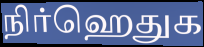
நிர்ஹெதுக